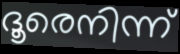
ദൂരെനിന്ന്